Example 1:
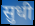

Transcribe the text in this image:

सुधी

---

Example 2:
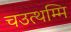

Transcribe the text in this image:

चउत्थम्मि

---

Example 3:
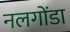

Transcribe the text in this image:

नलगोंडा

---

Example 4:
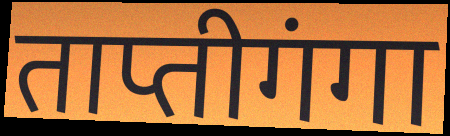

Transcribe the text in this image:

ताप्तीगंगा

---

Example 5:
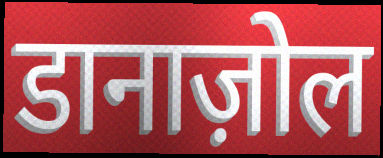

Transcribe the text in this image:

डानाज़ोल